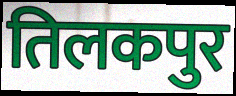
तिलकपुर